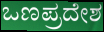
ಒಣಪ್ರದೇಶ